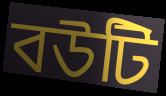
বউটি